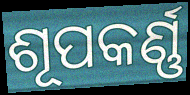
ଶୂପକର୍ଣ୍ଣ